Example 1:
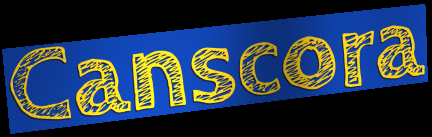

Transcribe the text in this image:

Canscora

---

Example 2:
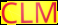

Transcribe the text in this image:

CLM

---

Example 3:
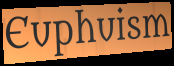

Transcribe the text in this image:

Euphuism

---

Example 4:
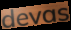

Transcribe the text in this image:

devas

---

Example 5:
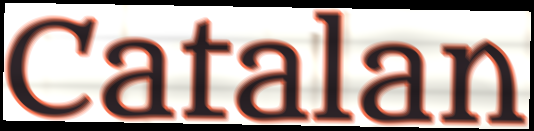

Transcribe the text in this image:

Catalan